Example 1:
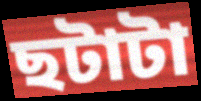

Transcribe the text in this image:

ছটাটা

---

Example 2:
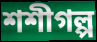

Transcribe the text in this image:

শশীগল্প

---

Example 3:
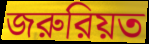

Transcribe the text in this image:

জরুরিয়ত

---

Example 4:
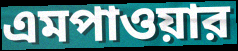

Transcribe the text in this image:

এমপাওয়ার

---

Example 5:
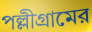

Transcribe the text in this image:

পল্লীগ্রামের